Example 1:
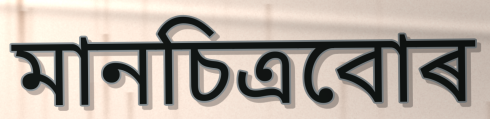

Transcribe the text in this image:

মানচিত্ৰবোৰ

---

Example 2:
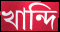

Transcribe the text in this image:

খান্দি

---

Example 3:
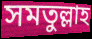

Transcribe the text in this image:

সমতুল্লাহ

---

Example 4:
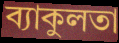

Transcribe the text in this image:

ব্যাকুলতা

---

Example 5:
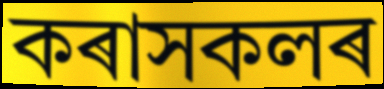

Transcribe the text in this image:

কৰাসকলৰ